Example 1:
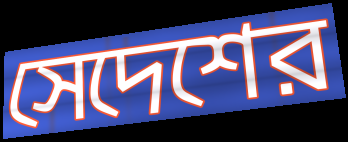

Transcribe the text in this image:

সেদেশের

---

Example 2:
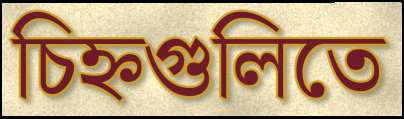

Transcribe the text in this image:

চিহ্নগুলিতে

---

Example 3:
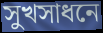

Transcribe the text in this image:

সুখসাধনে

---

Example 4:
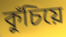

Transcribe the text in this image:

কুঁচিয়ে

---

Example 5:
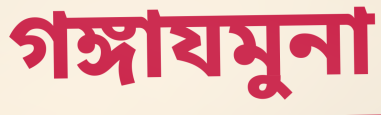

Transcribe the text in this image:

গঙ্গাযমুনা